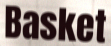
Basket